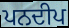
ਪਨਦੀਪ